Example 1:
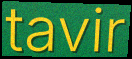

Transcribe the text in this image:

tavir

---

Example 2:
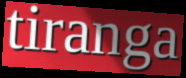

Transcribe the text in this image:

tiranga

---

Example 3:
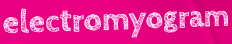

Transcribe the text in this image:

electromyogram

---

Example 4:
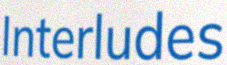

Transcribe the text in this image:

Interludes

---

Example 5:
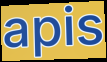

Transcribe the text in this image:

apis